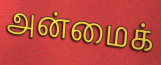
அன்மைக்